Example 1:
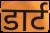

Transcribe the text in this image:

डार्ट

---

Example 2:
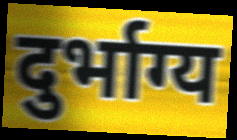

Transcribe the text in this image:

दुर्भाग्य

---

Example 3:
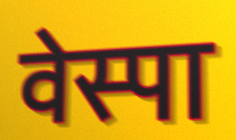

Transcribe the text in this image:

वेस्पा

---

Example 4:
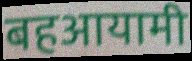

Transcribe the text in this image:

बहआयामी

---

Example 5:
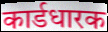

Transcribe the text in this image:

कार्डधारक